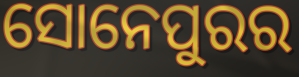
ସୋନେପୁରର